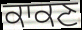
ਕਾਕਣ